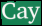
Cay